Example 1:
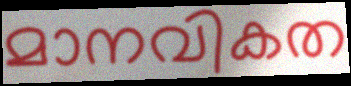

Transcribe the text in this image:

മാനവികത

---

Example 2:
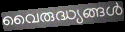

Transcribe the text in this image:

വൈരുദ്ധ്യങ്ങൾ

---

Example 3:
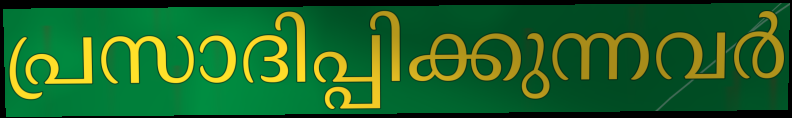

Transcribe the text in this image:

പ്രസാദിപ്പിക്കുന്നവർ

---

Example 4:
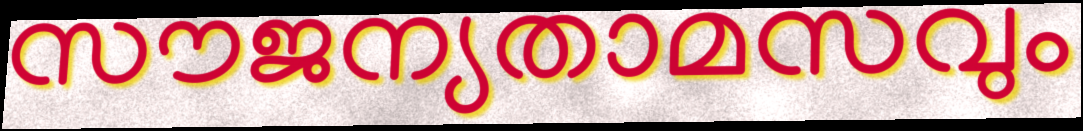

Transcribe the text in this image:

സൗജന്യതാമസവും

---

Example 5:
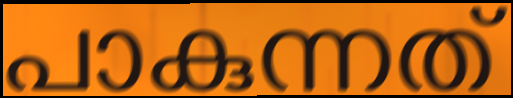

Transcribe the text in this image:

പാകുന്നത്